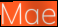
Mae